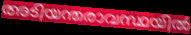
അടിയന്തരാവസ്ഥയിൽ